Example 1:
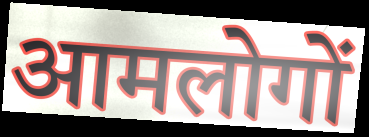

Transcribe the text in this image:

आमलोगों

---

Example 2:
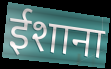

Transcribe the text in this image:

ईशाना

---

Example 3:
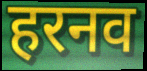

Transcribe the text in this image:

हरनव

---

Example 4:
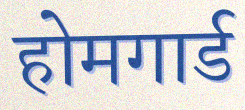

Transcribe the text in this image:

होमगार्ड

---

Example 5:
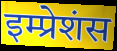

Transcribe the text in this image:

इम्प्रेशंस